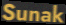
Sunak